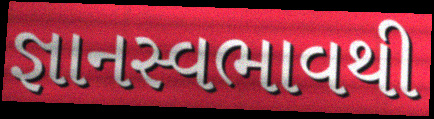
જ્ઞાનસ્વભાવથી